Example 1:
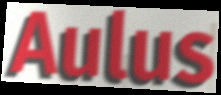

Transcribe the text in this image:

Aulus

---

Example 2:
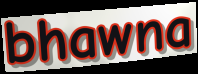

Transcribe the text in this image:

bhawna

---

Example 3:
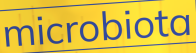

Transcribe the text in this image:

microbiota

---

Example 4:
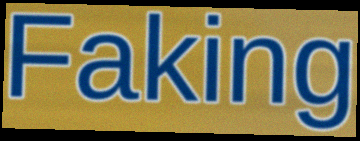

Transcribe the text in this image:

Faking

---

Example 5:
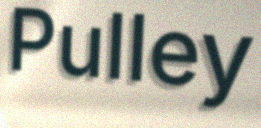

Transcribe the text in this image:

Pulley